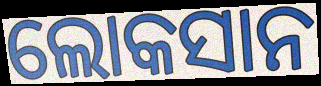
ଲୋକସାନ